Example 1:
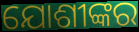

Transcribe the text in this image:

ଯୋଶୀଙ୍କର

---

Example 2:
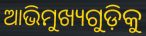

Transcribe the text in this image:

ଆଭିମୁଖ୍ୟଗୁଡ଼ିକୁ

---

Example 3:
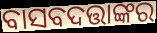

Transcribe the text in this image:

ବାସବଦତ୍ତାଙ୍କର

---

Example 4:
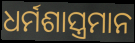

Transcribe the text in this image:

ଧର୍ମଶାସ୍ତ୍ରମାନ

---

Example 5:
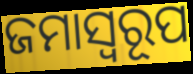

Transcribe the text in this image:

ଜମାସ୍ବରୂପ